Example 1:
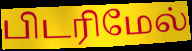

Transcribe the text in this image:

பிடரிமேல்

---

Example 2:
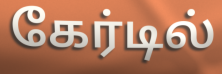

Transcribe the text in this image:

கேர்டில்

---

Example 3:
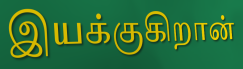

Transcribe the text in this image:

இயக்குகிறான்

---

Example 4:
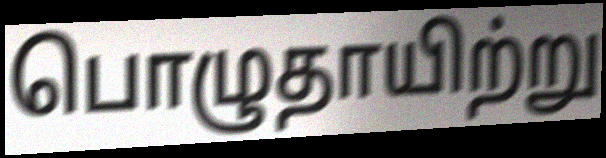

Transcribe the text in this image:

பொழுதாயிற்று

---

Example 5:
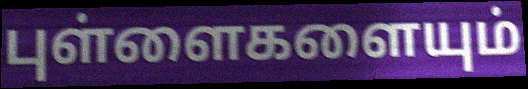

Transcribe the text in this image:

புள்ளைகளையும்